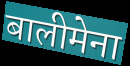
बालीमेना